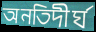
অনতিদীর্ঘ